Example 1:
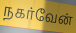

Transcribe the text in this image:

நகர்வேன்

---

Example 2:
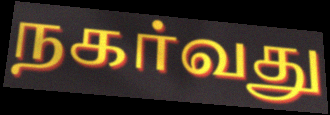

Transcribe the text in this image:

நகர்வது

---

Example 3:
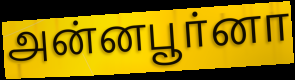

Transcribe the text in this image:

அன்னபூர்னா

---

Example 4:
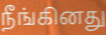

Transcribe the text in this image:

நீங்கினது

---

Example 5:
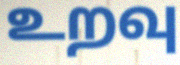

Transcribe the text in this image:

உறவு